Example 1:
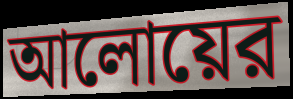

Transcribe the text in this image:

আলোয়ের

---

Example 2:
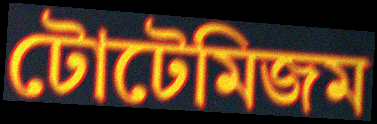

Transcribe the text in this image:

টোটেমিজম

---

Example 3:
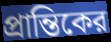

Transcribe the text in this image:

প্রান্তিকের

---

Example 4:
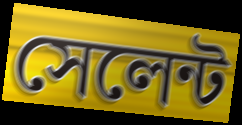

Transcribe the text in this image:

সেলেন্ট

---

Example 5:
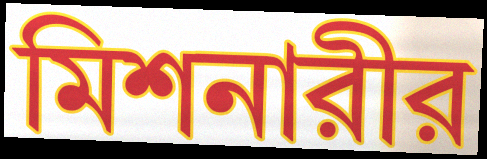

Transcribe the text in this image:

মিশনারীর